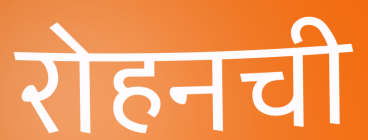
रोहनची